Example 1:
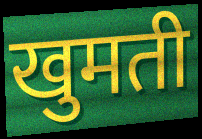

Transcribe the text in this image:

खुमती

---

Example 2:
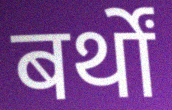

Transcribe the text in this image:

बर्थों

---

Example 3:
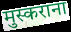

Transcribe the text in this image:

मुस्कराना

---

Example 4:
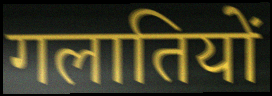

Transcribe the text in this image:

गलातियों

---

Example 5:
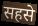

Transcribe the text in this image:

सहसे